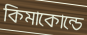
কিমাকোন্ডে